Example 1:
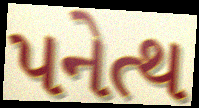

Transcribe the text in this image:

પનેત્થ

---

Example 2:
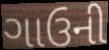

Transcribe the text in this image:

ગાઉની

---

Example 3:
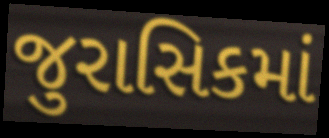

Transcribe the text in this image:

જુરાસિકમાં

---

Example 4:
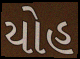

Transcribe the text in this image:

યોહ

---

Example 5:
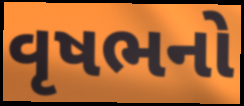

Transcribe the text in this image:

વૃષભનો